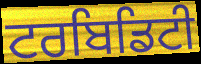
ਟਰਬਿਡਿਟੀ